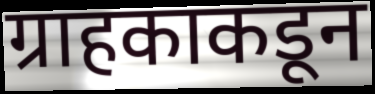
ग्राहकाकडून